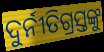
ଦୁର୍ନୀତିଗ୍ରସ୍ତଙ୍କୁ